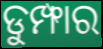
ଡୁମ୍ଫାର